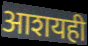
आशयही